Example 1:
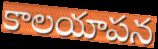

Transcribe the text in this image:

కాలయాపన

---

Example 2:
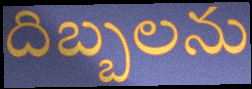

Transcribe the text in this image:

దిబ్బలను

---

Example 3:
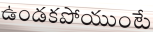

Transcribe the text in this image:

ఉండకపోయుంటే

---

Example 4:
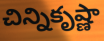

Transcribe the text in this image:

చిన్నికృష్ణా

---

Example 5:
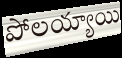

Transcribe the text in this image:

పోలయ్యాయి